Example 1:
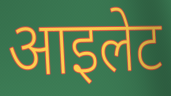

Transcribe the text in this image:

आइलेट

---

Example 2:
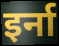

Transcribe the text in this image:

इर्ना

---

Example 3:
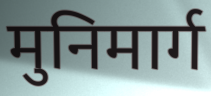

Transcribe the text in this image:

मुनिमार्ग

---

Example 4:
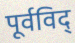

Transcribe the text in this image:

पूर्वविद्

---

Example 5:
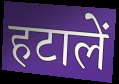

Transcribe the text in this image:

हटालें